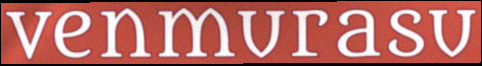
venmurasu